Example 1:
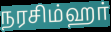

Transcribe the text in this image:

நரசிம்ஹர்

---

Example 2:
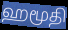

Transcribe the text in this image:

ஹமூதி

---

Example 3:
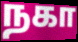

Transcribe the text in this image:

நகா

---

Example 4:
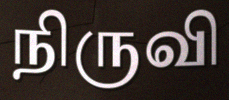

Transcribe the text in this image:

நிருவி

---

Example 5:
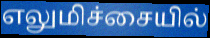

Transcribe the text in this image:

எலுமிச்சையில்